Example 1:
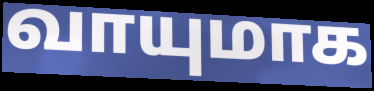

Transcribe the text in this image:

வாயுமாக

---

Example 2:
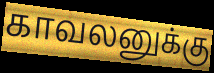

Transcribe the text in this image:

காவலனுக்கு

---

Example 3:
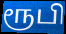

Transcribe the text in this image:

ரூபி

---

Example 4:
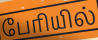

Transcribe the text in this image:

பேரியில்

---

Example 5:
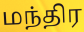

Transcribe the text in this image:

மந்திர